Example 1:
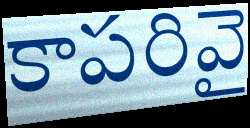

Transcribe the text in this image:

కాపరివై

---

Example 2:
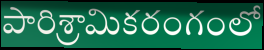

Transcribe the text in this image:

పారిశ్రామికరంగంలో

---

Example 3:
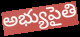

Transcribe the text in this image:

అభ్యుపైతి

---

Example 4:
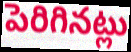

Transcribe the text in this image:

పెరిగినట్లు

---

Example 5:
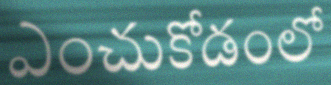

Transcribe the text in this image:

ఎంచుకోడంలో